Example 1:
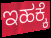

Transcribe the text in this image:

ಇಹಕ್ಕೆ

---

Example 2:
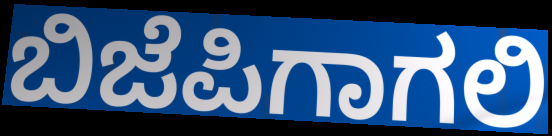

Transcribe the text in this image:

ಬಿಜೆಪಿಗಾಗಲಿ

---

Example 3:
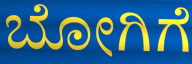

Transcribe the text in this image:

ಬೋಗಿಗೆ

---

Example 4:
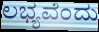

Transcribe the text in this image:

ಲಭ್ಯವೆಂದು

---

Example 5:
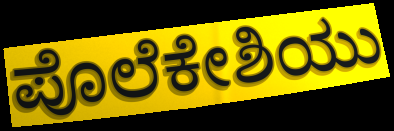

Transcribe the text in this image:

ಪೊಲೆಕೇಶಿಯು